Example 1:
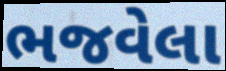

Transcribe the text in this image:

ભજવેલા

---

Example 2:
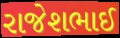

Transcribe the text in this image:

રાજેશભાઈ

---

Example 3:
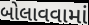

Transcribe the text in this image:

બોલાવવામાં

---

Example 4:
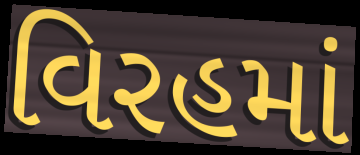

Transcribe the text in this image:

વિરહમાં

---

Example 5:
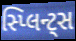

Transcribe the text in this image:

સ્પ્લિન્ટ્સ